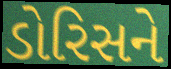
ડોરિસને